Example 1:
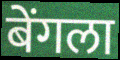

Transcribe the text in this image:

बेंगला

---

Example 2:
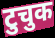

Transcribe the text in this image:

टुचुक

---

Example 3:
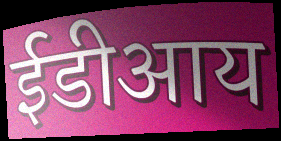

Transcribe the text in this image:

ईडीआय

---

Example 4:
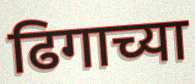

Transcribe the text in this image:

ढिगाच्या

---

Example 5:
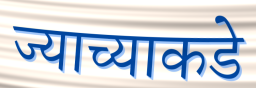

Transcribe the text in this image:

ज्याच्याकडे